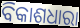
ବିକାଶଧାରା